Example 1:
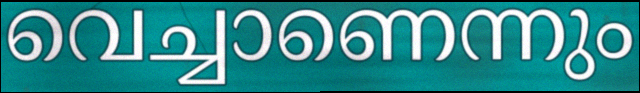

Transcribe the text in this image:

വെച്ചാണെന്നും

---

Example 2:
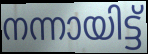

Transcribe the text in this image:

നന്നായിട്ട്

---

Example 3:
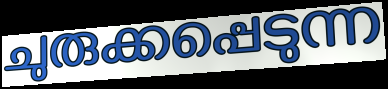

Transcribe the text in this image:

ചുരുക്കപ്പെടുന്ന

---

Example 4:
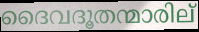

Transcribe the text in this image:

ദൈവദൂതന്മാരില്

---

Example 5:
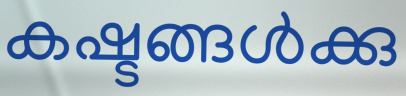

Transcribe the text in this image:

കഷ്ടങ്ങൾക്കു